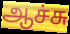
ஆச்சு